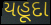
યહૂદા